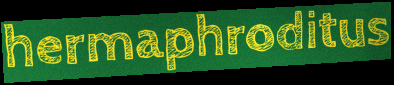
hermaphroditus